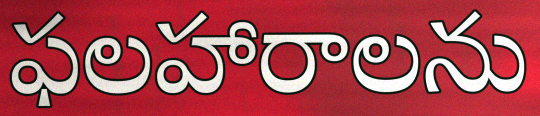
ఫలహారాలను